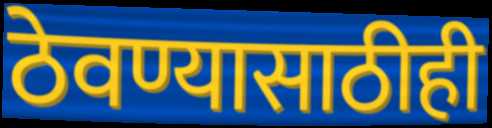
ठेवण्यासाठीही